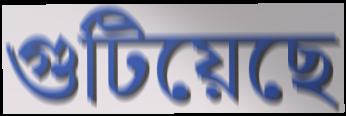
গুটিয়েছে